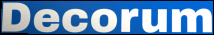
Decorum